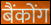
बैंकोंग